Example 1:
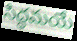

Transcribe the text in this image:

సిద్ధమయే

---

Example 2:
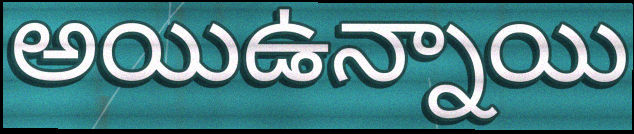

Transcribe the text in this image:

అయిఉన్నాయి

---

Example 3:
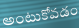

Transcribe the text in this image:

అంటుకోవడం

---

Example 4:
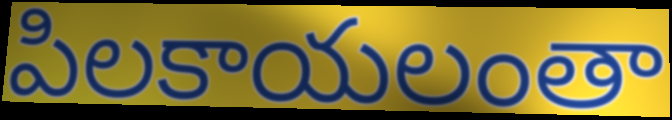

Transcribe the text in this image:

పిలకాయలంతా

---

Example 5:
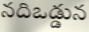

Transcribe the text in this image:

నదిఒడ్డున